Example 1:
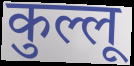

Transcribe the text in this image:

कुल्लू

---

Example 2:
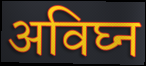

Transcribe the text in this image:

अविघ्न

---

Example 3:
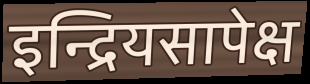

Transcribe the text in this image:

इन्द्रियसापेक्ष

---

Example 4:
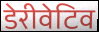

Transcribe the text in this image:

डेरीवेटिव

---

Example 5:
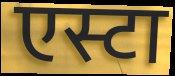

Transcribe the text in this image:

एस्टा